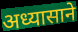
अध्यासाने